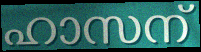
ഹാസന്